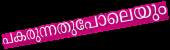
പകരുന്നതുപോലെയും